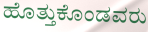
ಹೊತ್ತುಕೊಂಡವರು